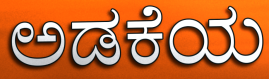
ಅಡಕೆಯ